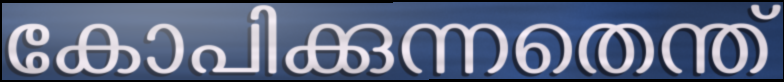
കോപിക്കുന്നതെന്ത്